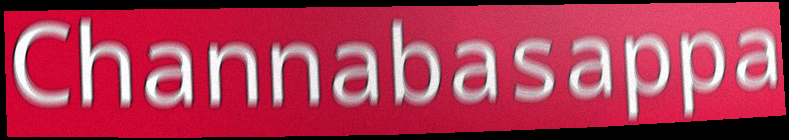
Channabasappa